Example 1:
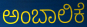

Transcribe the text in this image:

ಅಂಬಾಲಿಕೆ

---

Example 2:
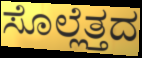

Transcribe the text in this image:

ಸೊಲ್ಲೆತ್ತದ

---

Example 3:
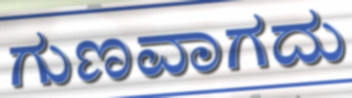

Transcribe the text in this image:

ಗುಣವಾಗದು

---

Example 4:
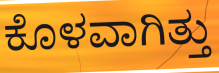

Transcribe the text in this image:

ಕೊಳವಾಗಿತ್ತು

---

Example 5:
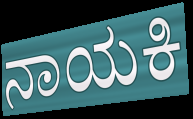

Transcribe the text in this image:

ನಾಯಕಿ